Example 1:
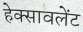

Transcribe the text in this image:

हेक्सावलेंट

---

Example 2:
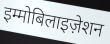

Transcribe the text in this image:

इम्मोबिलाइज़ेशन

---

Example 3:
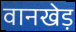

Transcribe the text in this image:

वानखेड़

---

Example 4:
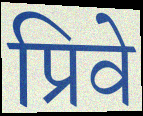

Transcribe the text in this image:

प्रिवे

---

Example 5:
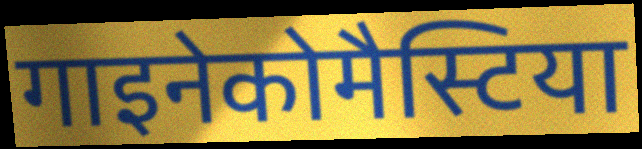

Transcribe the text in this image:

गाइनेकोमैस्टिया